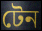
টেন